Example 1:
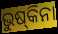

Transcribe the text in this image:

ଭୁଷ୍‌କିନା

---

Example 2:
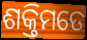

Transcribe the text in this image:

ଶକ୍ତିମତେ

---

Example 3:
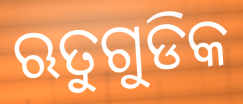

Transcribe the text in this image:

ଋତୁଗୁଡିକ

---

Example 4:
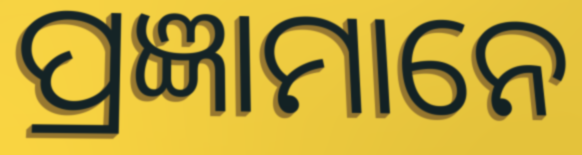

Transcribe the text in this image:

ପ୍ରଜ୍ଞାମାନେ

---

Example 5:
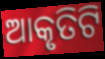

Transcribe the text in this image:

ଆକୃତିଟି